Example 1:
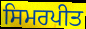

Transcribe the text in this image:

ਸਿਮਰਪੀਤ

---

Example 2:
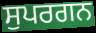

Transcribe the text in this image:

ਸੁਪਰਗਨ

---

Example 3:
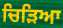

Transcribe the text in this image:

ਚਿੜਿਆ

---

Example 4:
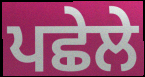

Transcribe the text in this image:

ਪਛੇਲੇ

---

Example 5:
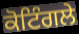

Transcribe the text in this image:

ਕੋਟਿੰਗਲੇ